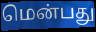
மென்பது